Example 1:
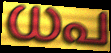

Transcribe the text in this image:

ധപ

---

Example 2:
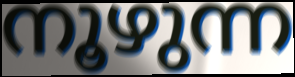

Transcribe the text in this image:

നൂഴുന്ന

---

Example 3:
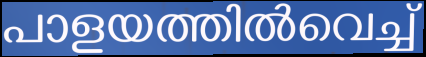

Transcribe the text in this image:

പാളയത്തിൽവെച്ച്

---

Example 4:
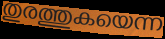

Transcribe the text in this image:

തുരത്തുകയെന്ന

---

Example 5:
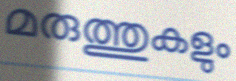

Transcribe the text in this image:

മരുത്തുകളും